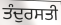
ਤੰਦੁਰਸਤੀ